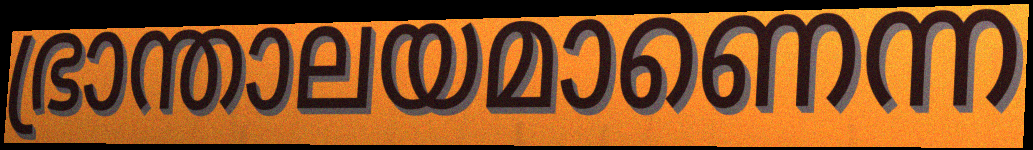
ഭ്രാന്താലയമാണെന്ന